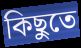
কিছুতে